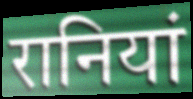
रानियां